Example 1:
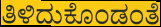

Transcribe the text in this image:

ತಿಳಿದುಕೊಂಡಂತೆ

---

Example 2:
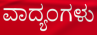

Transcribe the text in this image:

ವಾದ್ಯಂಗಳು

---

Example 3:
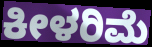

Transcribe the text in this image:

ಕೀಳರಿಮೆ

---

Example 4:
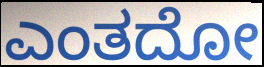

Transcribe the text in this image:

ಎಂತದೋ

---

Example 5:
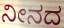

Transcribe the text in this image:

ನೀನದ